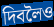
দিবলৈও